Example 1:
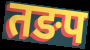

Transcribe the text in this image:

तङप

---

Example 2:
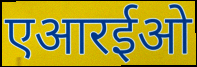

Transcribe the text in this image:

एआरईओ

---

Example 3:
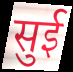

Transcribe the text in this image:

सुई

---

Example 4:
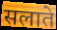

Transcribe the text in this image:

सलाते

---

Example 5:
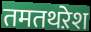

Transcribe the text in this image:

तमतथऱेश